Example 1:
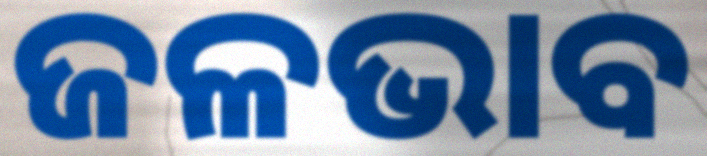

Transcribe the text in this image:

ଜଳଭାବ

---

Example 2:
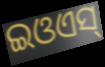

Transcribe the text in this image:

ଇଓଏସ୍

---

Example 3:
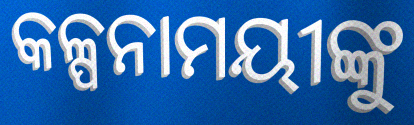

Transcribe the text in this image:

କଳ୍ପନାମୟୀଙ୍କୁ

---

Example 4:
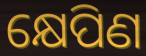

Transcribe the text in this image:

କ୍ଷେପିଣ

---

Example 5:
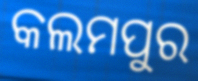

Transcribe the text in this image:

କଲମପୁର